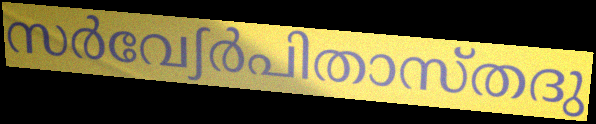
സർവേഽർപിതാസ്തദു